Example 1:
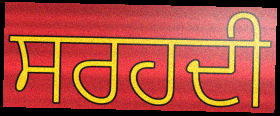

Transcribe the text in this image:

ਸਰਹਦੀ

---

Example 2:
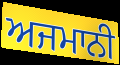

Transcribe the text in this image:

ਅਜਮਾਨੀ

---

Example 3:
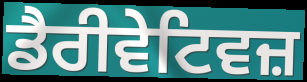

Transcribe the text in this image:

ਡੈਰੀਵੇਟਿਵਜ਼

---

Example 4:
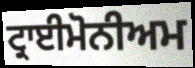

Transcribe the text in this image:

ਟ੍ਰਾਈਮੋਨੀਅਮ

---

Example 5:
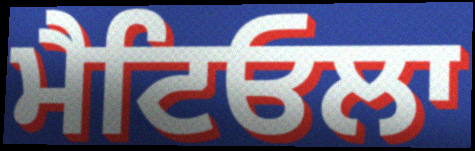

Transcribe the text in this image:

ਮੈਟਿਓਲਾ